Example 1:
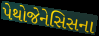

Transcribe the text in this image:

પેથોજેનેસિસના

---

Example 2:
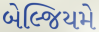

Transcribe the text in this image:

બેલ્જિયમે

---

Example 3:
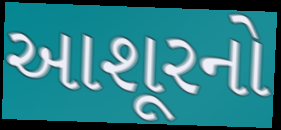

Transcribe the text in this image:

આશૂરનો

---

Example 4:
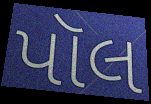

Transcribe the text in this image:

પૉલ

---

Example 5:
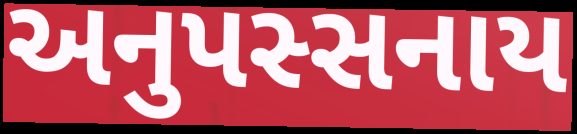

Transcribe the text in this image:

અનુપસ્સનાય